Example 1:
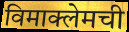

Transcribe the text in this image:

विमाक्लेमची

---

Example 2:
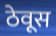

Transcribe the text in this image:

ठेवूस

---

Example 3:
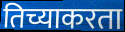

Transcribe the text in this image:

तिच्याकरता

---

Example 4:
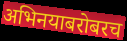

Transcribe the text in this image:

अभिनयाबरोबरच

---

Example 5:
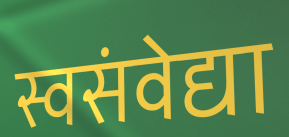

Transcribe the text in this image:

स्वसंवेद्या